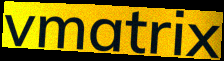
vmatrix